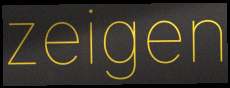
zeigen